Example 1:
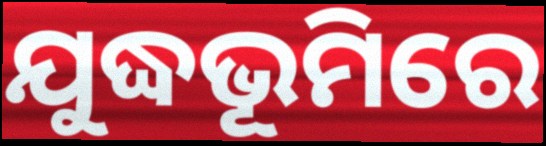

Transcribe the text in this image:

ଯୁଦ୍ଧଭୂମିରେ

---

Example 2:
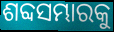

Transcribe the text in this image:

ଶବ୍ଦସମ୍ଭାରକୁ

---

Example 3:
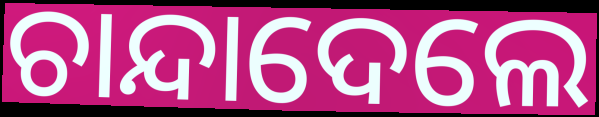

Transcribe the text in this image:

ଚାନ୍ଦାଦେଲେ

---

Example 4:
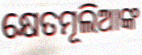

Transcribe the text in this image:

କ୍ଷେତମୂଲିଆଙ୍କ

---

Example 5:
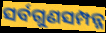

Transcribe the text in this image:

ସର୍ବଗୁଣସମ୍ପନ୍ନ